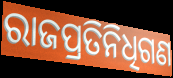
ରାଜପ୍ରତିନିଧିଗଣ